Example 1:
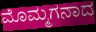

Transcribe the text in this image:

ಮೊಮ್ಮಗನಾದ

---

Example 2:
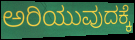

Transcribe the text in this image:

ಅರಿಯುವುದಕ್ಕೆ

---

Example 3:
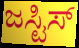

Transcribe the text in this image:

ಜಸ್ಟಿಸ್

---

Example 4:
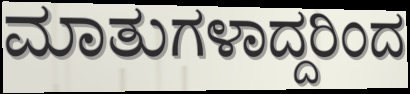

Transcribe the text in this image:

ಮಾತುಗಳಾದ್ದರಿಂದ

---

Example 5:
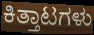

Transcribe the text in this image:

ಕಿತ್ತಾಟಗಳು